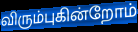
விரும்புகின்றோம்